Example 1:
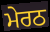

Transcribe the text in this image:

ਮੇਰਠ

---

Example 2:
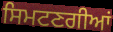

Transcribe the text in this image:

ਸਿਮਟਣਗੀਆਂ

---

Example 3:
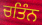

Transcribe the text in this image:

ਚਤਿੰਨ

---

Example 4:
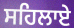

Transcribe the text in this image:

ਸਹਿਲਾਏ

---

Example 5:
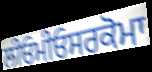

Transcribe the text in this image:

ਲੀਓਮੀਓਸਰਕੋਮਾ